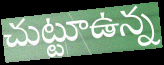
చుట్టూఉన్న